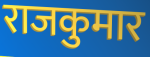
राजकुमार